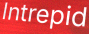
Intrepid